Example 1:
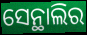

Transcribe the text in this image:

ସେନ୍ଥାଲିର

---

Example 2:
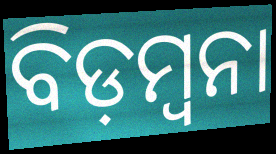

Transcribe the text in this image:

ବିଡ଼ମ୍ୱନା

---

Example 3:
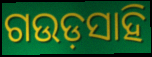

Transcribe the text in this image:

ଗଉଡ଼ସାହି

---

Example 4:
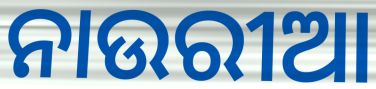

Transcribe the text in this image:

ନାଉରୀଆ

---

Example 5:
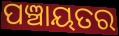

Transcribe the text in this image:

ପଞ୍ଚାୟତର